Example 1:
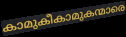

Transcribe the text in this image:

കാമുകീകാമുകന്മാരെ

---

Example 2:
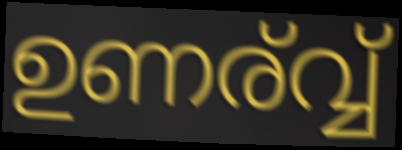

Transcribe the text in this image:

ഉണര്വ്വ്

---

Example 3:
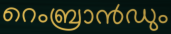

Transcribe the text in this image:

റെംബ്രാൻഡും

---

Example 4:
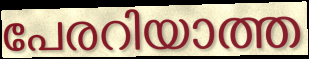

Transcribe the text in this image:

പേരറിയാത്ത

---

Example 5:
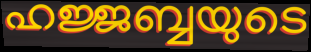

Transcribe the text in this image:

ഹജ്ജബ്ബയുടെ